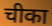
चीका